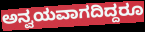
ಅನ್ವಯವಾಗದಿದ್ದರೂ